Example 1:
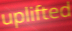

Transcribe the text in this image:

uplifted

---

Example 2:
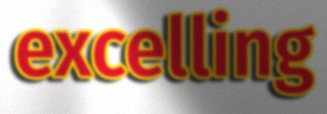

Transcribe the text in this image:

excelling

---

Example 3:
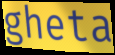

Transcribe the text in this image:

gheta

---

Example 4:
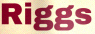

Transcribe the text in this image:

Riggs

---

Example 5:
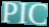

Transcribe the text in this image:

PIC